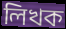
লিখক